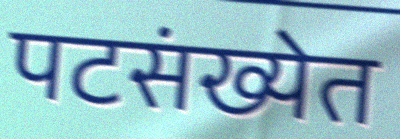
पटसंख्येत